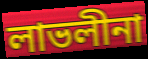
লাভলীনা